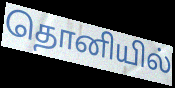
தொனியில்